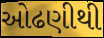
ઓઢણીથી